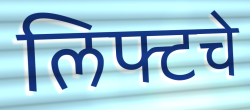
लिफ्टचे